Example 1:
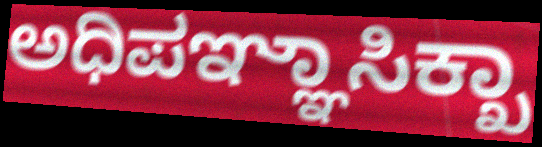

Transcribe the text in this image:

ಅಧಿಪಞ್ಞಾಸಿಕ್ಖಾ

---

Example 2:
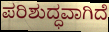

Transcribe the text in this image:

ಪರಿಶುದ್ಧವಾಗಿದೆ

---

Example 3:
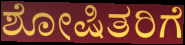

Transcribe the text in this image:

ಶೋಷಿತರಿಗೆ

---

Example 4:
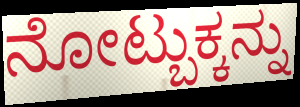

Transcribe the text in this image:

ನೋಟ್ಬುಕ್ಕನ್ನು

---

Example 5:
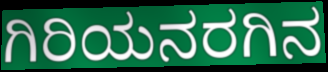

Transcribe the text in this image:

ಗಿರಿಯನರಗಿನ